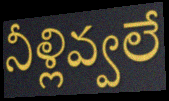
నీళ్లివ్వలే